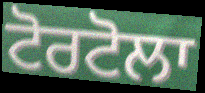
ਟੋਰਟੋਲਾ